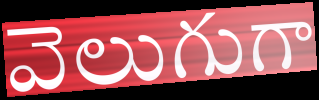
వెలుగుగా